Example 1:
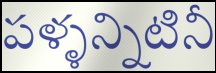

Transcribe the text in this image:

పళ్ళన్నిటినీ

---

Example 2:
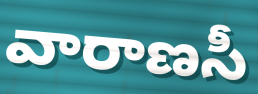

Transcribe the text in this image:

వారాణసీ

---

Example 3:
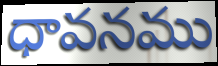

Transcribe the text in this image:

ధావనము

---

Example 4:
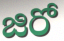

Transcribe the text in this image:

జిరో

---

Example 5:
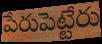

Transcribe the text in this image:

పేరుపెట్టేరు